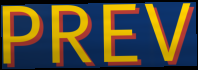
PREV